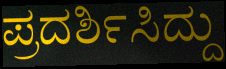
ಪ್ರದರ್ಶಿಸಿದ್ದು